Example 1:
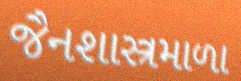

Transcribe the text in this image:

જૈનશાસ્ત્રમાળા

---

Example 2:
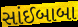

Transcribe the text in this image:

સાંઈબાબા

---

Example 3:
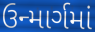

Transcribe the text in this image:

ઉન્માર્ગમાં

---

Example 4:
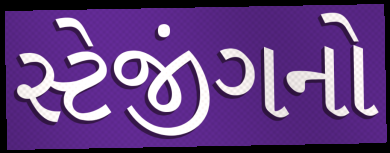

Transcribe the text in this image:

સ્ટેજીંગનો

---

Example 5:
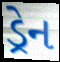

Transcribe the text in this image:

ડ્રેન